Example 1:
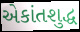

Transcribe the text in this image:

એકાંતશુદ્ધ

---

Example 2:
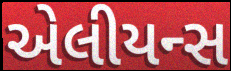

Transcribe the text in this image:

એલીયન્સ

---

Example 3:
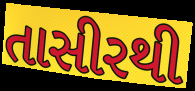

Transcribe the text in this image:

તાસીરથી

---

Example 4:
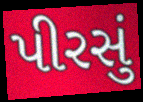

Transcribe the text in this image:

પીરસું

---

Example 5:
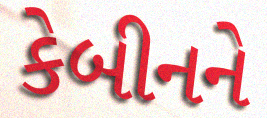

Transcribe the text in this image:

કેબીનને